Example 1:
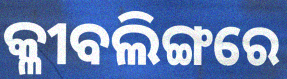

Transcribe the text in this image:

କ୍ଳୀବଲିଙ୍ଗରେ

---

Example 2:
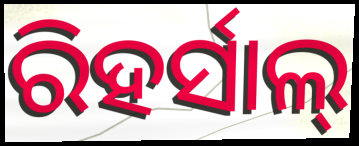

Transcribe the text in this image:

ରିହର୍ସାଲ୍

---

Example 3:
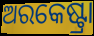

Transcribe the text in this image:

ଅରକେଷ୍ଟ୍ରା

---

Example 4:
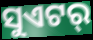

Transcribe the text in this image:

ସୁଏଟର୍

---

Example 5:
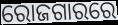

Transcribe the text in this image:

ରୋଜଗାରରେ